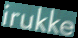
irukke